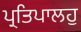
ਪ੍ਰਤਿਪਾਲਹੁ